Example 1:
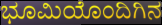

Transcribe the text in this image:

ಭೂಮಿಯೊಂದಿಗಿನ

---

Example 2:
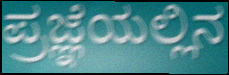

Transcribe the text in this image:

ಪ್ರಜ್ಞೆಯಲ್ಲಿನ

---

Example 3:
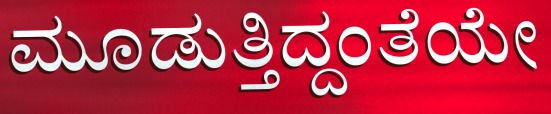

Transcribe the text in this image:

ಮೂಡುತ್ತಿದ್ದಂತೆಯೇ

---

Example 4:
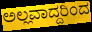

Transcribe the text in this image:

ಅಲ್ಲವಾದ್ದರಿಂದ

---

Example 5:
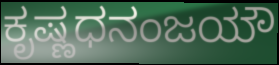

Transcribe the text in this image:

ಕೃಷ್ಣಧನಂಜಯೌ